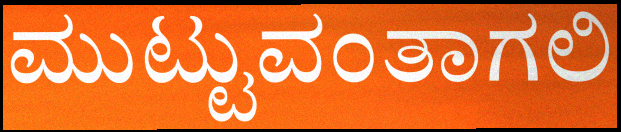
ಮುಟ್ಟುವಂತಾಗಲಿ